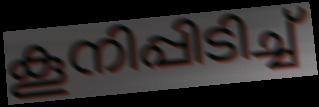
കൂനിപ്പിടിച്ച്